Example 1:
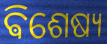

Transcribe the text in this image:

ଵିଶେଷ୍ୟ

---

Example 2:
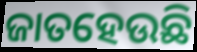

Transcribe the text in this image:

ଜାତହେଉଛି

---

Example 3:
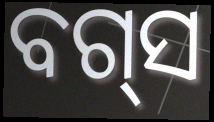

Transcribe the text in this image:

ବଗ୍‌ସ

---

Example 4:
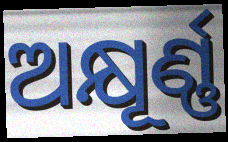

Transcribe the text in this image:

ଅକ୍ଷୂର୍ଣ୍ଣ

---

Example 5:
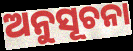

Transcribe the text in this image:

ଅନୁସୂଚନା